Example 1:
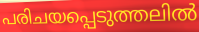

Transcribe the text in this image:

പരിചയപ്പെടുത്തലിൽ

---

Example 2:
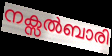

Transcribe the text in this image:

നക്സൽബാരി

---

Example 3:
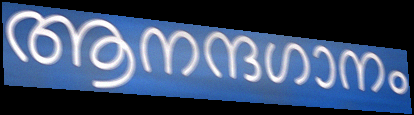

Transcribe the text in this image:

ആനന്ദഗാനം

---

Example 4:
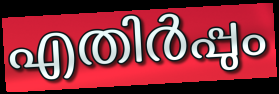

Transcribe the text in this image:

എതിർപ്പും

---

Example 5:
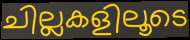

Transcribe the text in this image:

ചില്ലകളിലൂടെ